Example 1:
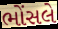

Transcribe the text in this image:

ભોંસલે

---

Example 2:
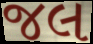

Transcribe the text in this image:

જલ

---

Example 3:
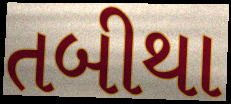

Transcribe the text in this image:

તબીથા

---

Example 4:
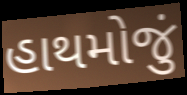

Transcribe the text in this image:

હાથમોજું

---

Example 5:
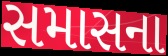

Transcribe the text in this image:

સમાસના